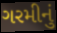
ગરમીનું